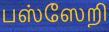
பஸ்ஸேறி